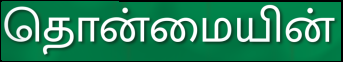
தொன்மையின்